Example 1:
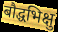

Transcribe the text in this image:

बौद्धभिक्षु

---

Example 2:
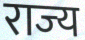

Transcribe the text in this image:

राज्‍य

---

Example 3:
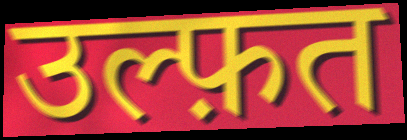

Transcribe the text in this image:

उल्फ़त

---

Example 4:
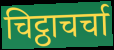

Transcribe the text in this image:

चिट्ठाचर्चा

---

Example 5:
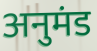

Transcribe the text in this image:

अनुमंड